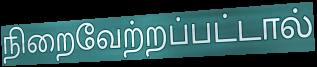
நிறைவேற்றப்பட்டால்